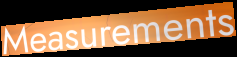
Measurements